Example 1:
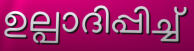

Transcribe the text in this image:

ഉല്പാദിപ്പിച്ച്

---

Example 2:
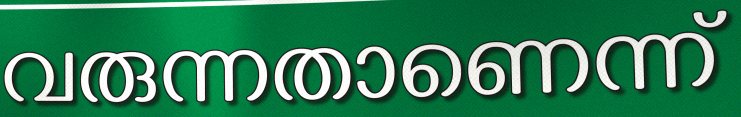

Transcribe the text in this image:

വരുന്നതാണെന്ന്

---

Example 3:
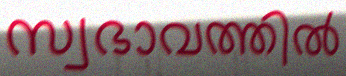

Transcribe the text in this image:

സ്വഭാവത്തിൽ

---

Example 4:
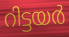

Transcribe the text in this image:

റിട്ടയർ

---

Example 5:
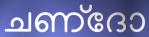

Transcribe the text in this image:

ചണ്ദോ